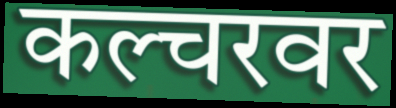
कल्चरवर